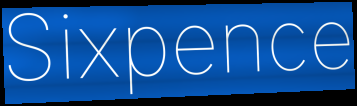
Sixpence